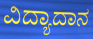
ವಿದ್ಯಾದಾನ